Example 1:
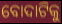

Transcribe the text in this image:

ବୋଦାଟିକୁ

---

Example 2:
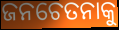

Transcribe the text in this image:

ଜନଚେତନାକୁ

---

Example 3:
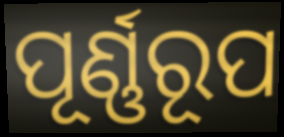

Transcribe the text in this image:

ପୂର୍ଣ୍ଣରୂପ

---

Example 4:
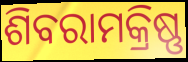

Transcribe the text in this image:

ଶିବରାମକ୍ରିଷ୍ଣ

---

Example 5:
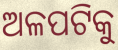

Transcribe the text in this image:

ଅଳପଟିକୁ